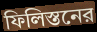
ফিলিস্তনের